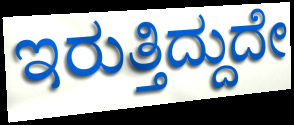
ಇರುತ್ತಿದ್ದುದೇ